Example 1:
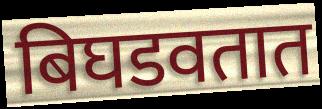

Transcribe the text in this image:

बिघडवतात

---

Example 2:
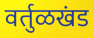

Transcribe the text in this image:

वर्तुळखंड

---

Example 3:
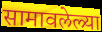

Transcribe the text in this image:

सामावलेल्या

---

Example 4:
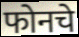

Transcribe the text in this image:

फोनचे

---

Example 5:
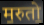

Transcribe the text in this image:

म॒रुतो॒